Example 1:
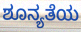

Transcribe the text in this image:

ಶೂನ್ಯತೆಯ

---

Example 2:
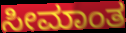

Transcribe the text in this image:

ಸೀಮಾಂತ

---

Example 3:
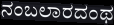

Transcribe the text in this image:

ನಂಬಲಾರದಂಥ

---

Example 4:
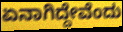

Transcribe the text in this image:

ಏನಾಗಿದ್ದೇವೆಂದು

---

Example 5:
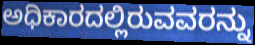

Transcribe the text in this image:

ಅಧಿಕಾರದಲ್ಲಿರುವವರನ್ನು